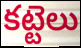
కట్టెలు